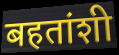
बहतांशी